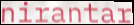
nirantar